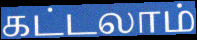
கட்டலாம்